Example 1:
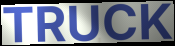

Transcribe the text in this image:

TRUCK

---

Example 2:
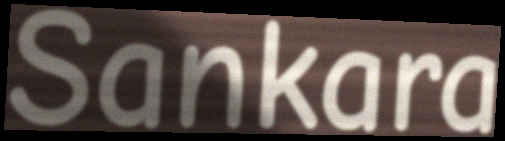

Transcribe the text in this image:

Sankara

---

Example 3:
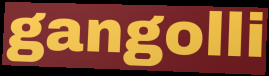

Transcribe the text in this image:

gangolli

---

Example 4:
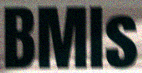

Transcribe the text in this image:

BMIs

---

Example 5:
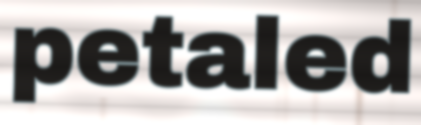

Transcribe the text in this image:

petaled